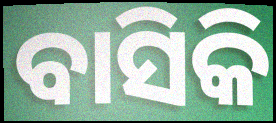
ବାସିକି